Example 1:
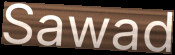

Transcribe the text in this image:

Sawad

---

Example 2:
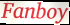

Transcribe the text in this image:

Fanboy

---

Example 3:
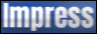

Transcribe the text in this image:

Impress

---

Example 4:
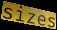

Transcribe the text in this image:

sizes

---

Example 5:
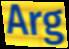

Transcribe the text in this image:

Arg